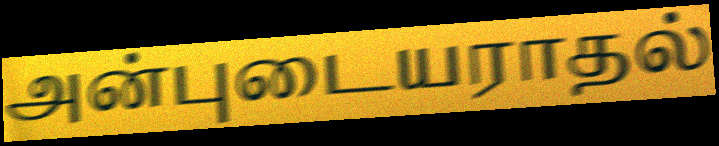
அன்புடையராதல்